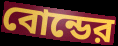
বোন্ডের